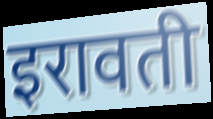
इरावती